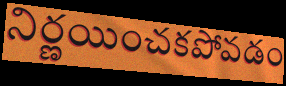
నిర్ణయించకపోవడం